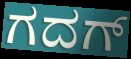
ಗದಗ್